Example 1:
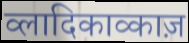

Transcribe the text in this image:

व्लादिकाव्काज़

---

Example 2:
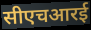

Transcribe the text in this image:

सीएचआरई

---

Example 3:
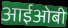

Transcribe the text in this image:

आईओबी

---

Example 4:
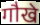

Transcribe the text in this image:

गौखे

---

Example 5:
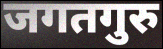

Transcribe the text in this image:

जगतगुरु